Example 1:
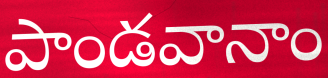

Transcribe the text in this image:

పాండవానాం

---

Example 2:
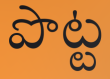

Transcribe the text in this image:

పొట్ట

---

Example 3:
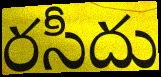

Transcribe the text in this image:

రసీదు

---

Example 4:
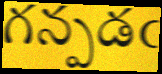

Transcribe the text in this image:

గన్పడఁ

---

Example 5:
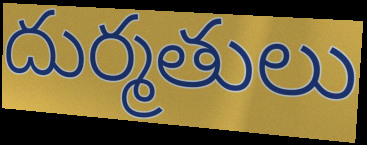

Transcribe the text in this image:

దుర్మతులు